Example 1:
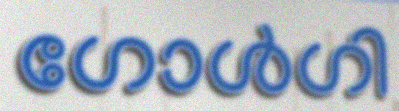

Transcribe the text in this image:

ഗോൾഗി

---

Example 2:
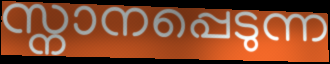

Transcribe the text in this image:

സ്നാനപ്പെടുന്ന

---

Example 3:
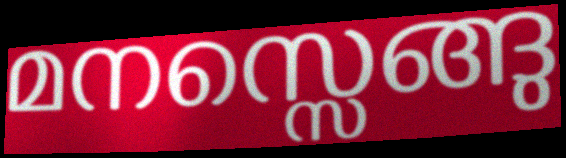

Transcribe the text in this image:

മനസ്സെങ്ങു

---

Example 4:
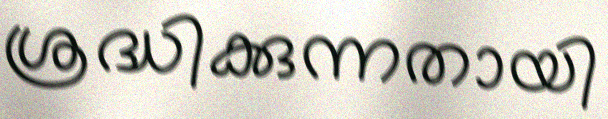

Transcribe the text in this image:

ശ്രദ്ധിക്കുന്നതായി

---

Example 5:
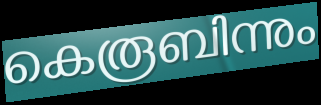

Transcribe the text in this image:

കെരൂബിന്നും